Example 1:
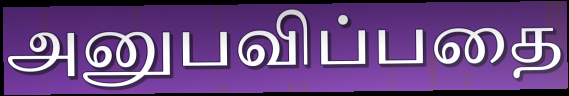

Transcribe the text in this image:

அனுபவிப்பதை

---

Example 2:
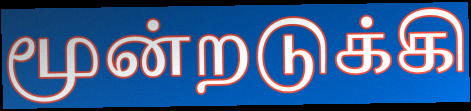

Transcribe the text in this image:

மூன்றடுக்கி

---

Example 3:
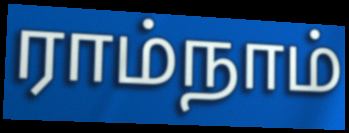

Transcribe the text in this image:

ராம்நாம்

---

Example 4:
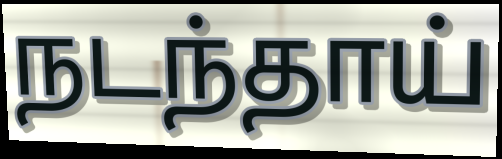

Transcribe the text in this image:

நடந்தாய்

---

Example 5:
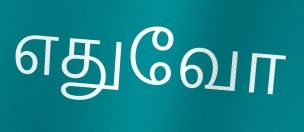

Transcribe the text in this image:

எதுவோ